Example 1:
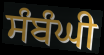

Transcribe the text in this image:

ਸੰਬੰਘੀ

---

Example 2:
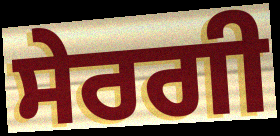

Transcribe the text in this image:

ਸੇਰਗੀ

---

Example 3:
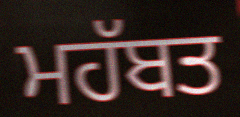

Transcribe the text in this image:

ਮਹੱਬਤ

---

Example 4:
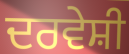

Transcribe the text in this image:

ਦਰਵੇਸ਼ੀ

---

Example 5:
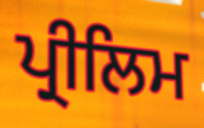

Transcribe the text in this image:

ਪ੍ਰੀਲਿਮ